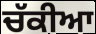
ਚੱਕੀਆ